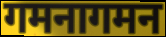
गमनागमन